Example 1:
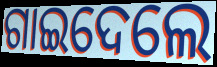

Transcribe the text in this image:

ଗାଇଦେଲେ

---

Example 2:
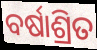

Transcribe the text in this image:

ବର୍ଷାଶ୍ରିତ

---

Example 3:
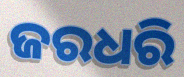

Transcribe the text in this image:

ଜରଧରି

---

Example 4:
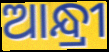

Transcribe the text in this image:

ଆନ୍ଧ୍ରୀ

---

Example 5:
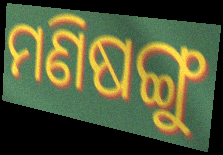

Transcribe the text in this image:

ମଣିଷଙ୍ଗୁ